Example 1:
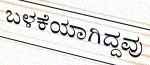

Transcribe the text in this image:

ಬಳಕೆಯಾಗಿದ್ದವು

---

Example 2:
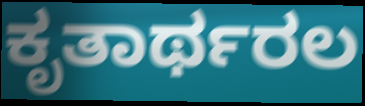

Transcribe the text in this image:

ಕೃತಾರ್ಥರಲ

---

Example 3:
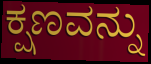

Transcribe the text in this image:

ಕ್ಷಣವನ್ನು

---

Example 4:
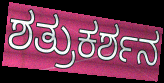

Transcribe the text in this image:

ಶತ್ರುಕರ್ಶನ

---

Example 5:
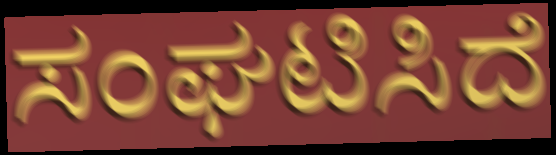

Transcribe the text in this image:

ಸಂಘಟಿಸಿದೆ